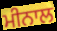
ਮੀਨਾਲ